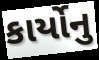
કાર્યોનુ